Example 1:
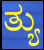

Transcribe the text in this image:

ತ್ಯು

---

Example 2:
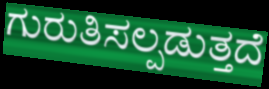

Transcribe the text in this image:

ಗುರುತಿಸಲ್ಪಡುತ್ತದೆ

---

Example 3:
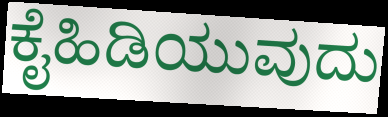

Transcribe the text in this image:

ಕೈಹಿಡಿಯುವುದು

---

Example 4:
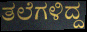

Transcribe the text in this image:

ತಲೆಗಳಿದ್ದ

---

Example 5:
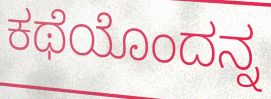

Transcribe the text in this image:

ಕಥೆಯೊಂದನ್ನ